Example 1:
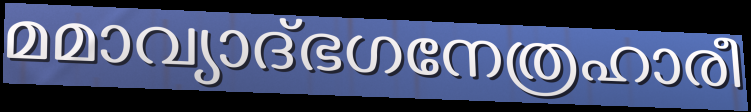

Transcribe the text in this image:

മമാവ്യാദ്ഭഗനേത്രഹാരീ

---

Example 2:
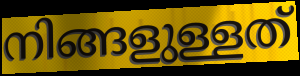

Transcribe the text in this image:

നിങ്ങളുള്ളത്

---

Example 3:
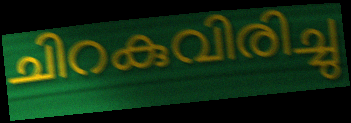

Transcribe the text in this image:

ചിറകുവിരിച്ചു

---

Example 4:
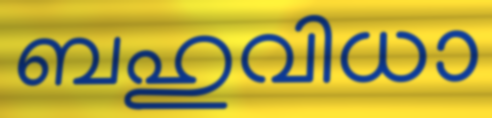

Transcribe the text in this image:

ബഹുവിധാ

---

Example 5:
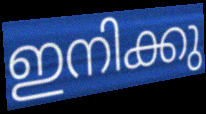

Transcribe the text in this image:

ഇനിക്കു